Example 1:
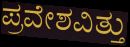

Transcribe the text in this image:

ಪ್ರವೇಶವಿತ್ತು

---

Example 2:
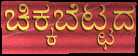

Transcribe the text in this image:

ಚಿಕ್ಕಬೆಟ್ಟದ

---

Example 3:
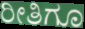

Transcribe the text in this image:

ರೀತಿಗೂ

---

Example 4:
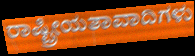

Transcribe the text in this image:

ರಾಷ್ಟ್ರೀಯತಾವಾದಿಗಳು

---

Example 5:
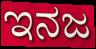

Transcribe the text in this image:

ಇನಜ